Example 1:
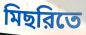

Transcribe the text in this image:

মিছরিতে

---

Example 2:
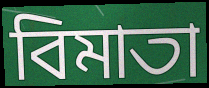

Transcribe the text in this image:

বিমাতা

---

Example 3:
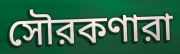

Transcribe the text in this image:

সৌরকণারা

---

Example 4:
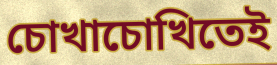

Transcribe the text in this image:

চোখাচোখিতেই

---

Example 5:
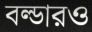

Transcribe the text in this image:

বল্ডারও